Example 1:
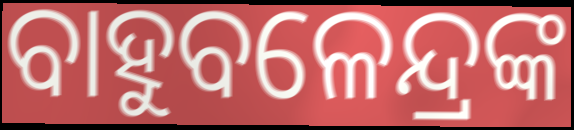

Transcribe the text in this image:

ବାହୁବଳେନ୍ଦ୍ରଙ୍କ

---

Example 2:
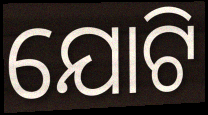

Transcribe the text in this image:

ଯୋଟି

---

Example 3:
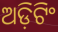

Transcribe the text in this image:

ଅଡ଼ିଟିଂ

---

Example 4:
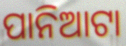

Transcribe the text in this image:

ପାନିଆଟା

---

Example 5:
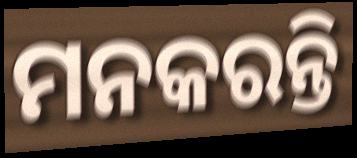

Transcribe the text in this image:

ମନକରନ୍ତି